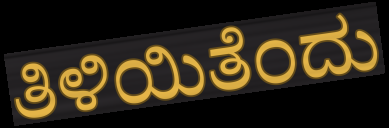
ತಿಳಿಯಿತೆಂದು